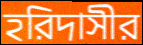
হরিদাসীর